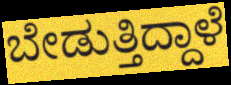
ಬೇಡುತ್ತಿದ್ದಾಳೆ